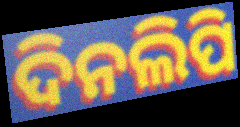
ଦିନଲିପି